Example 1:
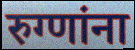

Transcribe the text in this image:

रुग्णांना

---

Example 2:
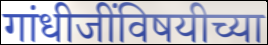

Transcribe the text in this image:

गांधीजींविषयीच्या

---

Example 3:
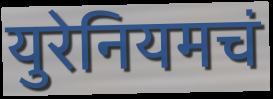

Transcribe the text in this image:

युरेनियमचं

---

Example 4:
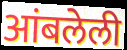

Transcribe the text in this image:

आंबलेली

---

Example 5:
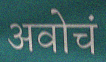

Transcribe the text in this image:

अवोचं